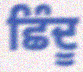
ਛਿੰਦੂ